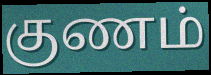
குணம்